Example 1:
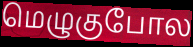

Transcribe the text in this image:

மெழுகுபோல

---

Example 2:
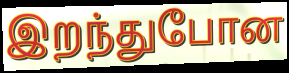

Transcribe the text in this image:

இறந்துபோன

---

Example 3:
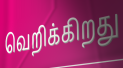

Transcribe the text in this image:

வெறிக்கிறது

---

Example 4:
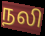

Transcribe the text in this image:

நலி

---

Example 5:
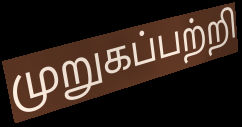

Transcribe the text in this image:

முறுகப்பற்றி